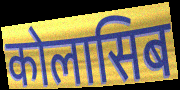
कोलासिब